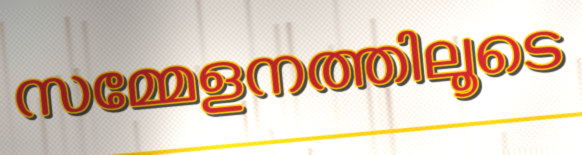
സമ്മേളനത്തിലൂടെ